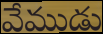
వేముడు